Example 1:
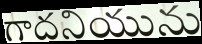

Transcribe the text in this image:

గాదనియును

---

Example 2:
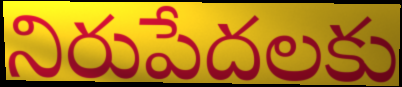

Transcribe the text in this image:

నిరుపేదలకు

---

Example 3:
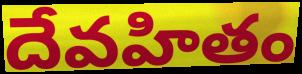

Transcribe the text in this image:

దేవహితం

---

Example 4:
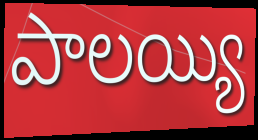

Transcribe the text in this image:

పాలయ్యి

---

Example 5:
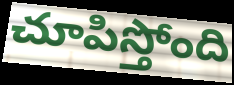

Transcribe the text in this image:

చూపిస్తోంది